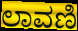
ಲಾವಣಿ